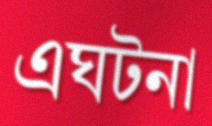
এঘটনা